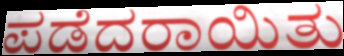
ಪಡೆದರಾಯಿತು